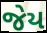
જેય